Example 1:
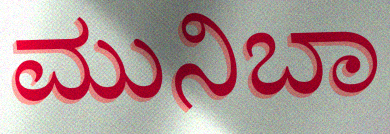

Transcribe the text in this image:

ಮುನಿಬಾ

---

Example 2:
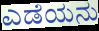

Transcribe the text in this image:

ಎಡೆಯನು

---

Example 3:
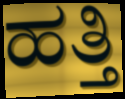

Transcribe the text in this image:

ಹತ್ತಿ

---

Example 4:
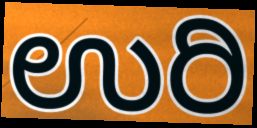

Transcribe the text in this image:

ಉರಿ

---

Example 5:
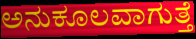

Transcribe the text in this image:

ಅನುಕೂಲವಾಗುತ್ತೆ